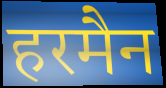
हरमैन